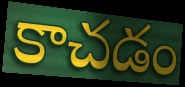
కాచడం